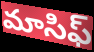
మాసిఫ్